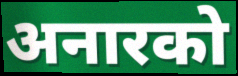
अनारको